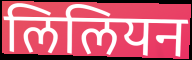
लिलियन